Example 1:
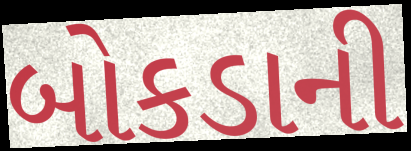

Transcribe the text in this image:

બોકડાની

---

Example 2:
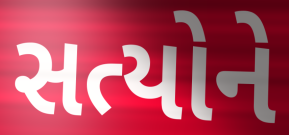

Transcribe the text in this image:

સત્યોને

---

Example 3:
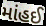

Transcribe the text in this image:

માંહઈ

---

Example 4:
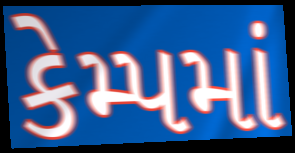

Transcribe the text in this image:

કેમ્પમાં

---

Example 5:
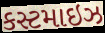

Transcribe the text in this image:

કસ્ટમાઇઝ